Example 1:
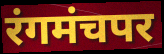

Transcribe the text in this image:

रंगमंचपर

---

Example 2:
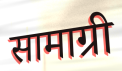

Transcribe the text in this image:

सामाग्री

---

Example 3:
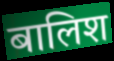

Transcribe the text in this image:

बालिश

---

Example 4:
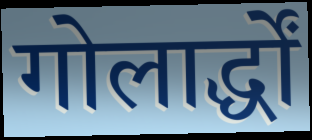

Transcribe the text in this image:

गोलार्द्धों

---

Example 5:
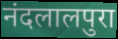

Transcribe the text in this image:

नंदलालपुरा